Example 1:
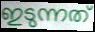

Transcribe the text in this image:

ഇടുന്നത്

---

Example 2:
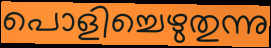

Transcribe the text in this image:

പൊളിച്ചെഴുതുന്നു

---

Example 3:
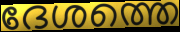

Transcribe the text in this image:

ദേശത്തെ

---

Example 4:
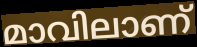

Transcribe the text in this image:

മാവിലാണ്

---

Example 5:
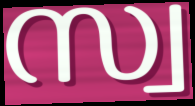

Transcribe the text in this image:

സ്വ